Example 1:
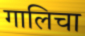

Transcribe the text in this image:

गालिचा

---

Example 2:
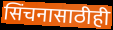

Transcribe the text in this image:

सिंचनासाठीही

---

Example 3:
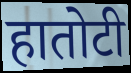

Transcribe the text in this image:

हातोटी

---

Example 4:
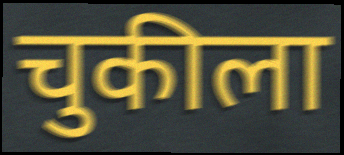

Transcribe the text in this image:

चुकीला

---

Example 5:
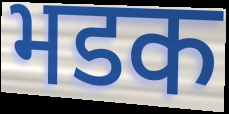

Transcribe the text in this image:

भडक